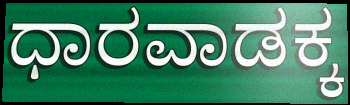
ಧಾರವಾಡಕ್ಕ